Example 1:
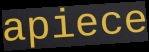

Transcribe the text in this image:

apiece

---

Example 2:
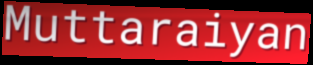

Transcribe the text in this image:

Muttaraiyan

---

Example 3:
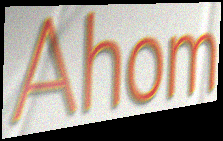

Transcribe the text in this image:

Ahom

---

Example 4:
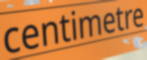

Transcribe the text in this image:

centimetre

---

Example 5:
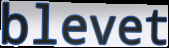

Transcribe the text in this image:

blevet